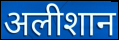
अलीशान